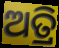
ଅତ୍ରି